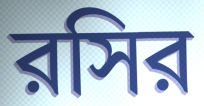
রসির